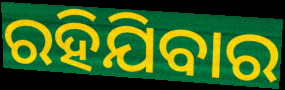
ରହିଯିବାର